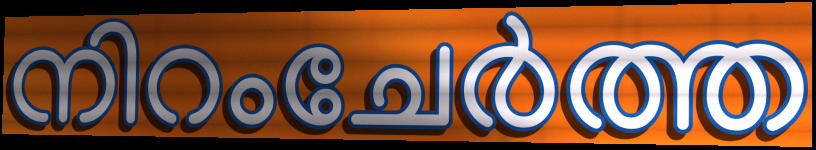
നിറംചേർത്ത